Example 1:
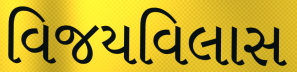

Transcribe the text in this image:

વિજયવિલાસ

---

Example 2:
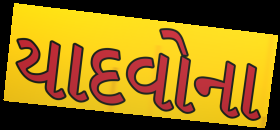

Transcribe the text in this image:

યાદવોના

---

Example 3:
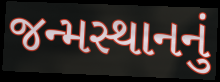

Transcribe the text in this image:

જન્મસ્થાનનું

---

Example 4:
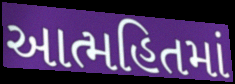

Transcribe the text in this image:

આત્મહિતમાં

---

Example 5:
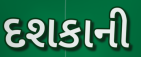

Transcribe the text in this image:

દશકાની